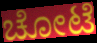
ಚೋಟೆ